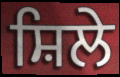
ਸ਼ਿਲੇ